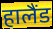
हालैंड